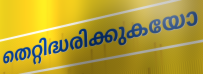
തെറ്റിദ്ധരിക്കുകയോ